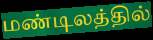
மண்டிலத்தில்